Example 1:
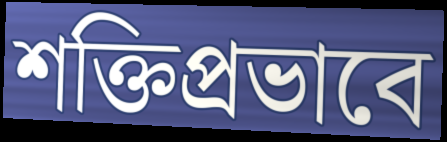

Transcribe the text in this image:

শক্তিপ্রভাবে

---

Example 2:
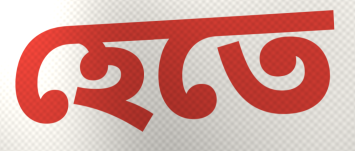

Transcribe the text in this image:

হেতে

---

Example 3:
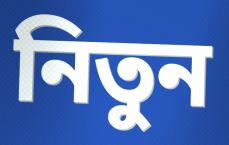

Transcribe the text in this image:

নিতুন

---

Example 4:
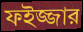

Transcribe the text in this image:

ফইজ্জার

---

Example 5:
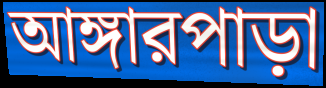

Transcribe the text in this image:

আঙ্গারপাড়া